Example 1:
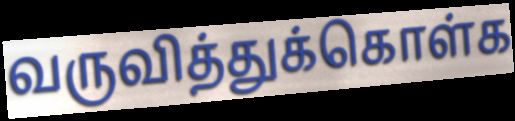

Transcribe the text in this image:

வருவித்துக்கொள்க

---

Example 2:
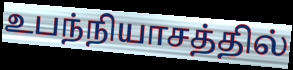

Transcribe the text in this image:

உபந்நியாசத்தில்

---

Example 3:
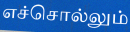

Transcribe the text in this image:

எச்சொல்லும்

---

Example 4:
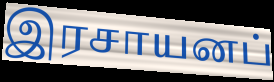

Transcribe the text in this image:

இரசாயனப்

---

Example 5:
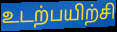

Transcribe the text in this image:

உடற்பயிற்சி